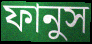
ফানুস